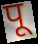
पू